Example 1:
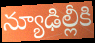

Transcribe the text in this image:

న్యూఢిల్లీకి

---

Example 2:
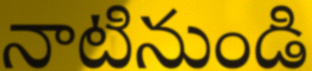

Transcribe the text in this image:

నాటినుండి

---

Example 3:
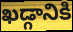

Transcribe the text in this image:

ఖడ్గానికి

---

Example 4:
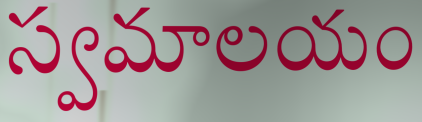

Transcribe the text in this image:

స్వమాలయం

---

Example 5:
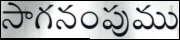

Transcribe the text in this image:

సాగనంపుము